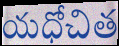
యధోచిత